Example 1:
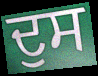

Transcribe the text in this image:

ਦੁਸ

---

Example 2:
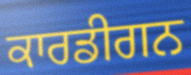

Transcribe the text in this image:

ਕਾਰਡੀਗਨ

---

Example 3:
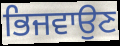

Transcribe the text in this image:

ਭਿਜਵਾਉਣ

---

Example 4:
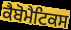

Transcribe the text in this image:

ਕੈਬੋਮੈਟਿਕਸ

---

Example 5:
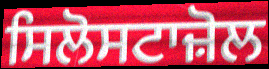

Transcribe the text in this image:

ਸਿਲੋਸਟਾਜ਼ੋਲ